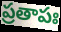
ప్రతాపః